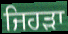
ਜਿਹੜਾ